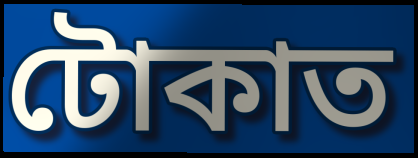
টোকাত